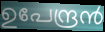
ഉപേന്ദ്രൻ